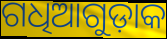
ଗଧିଆଗୁଡ଼ାକ